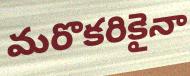
మరొకరికైనా